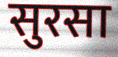
सुरसा